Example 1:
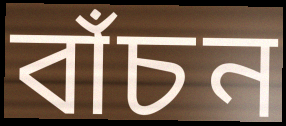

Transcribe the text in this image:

বাঁচন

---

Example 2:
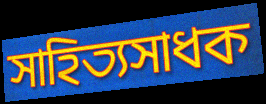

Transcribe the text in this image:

সাহিত্যসাধক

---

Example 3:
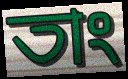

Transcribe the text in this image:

তাং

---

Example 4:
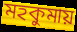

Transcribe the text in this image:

মহকুমায়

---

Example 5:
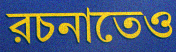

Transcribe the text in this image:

রচনাতেও